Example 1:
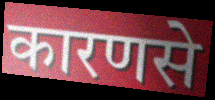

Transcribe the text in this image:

कारणसे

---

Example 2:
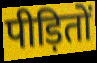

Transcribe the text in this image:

पीड़ितों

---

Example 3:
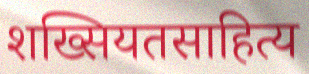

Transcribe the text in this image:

शख्सियतसाहित्य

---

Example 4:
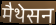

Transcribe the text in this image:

मैथेसन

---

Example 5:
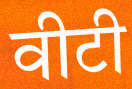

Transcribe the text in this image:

वीटी